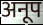
अनूप